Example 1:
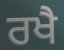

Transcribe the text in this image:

ਰਖੈ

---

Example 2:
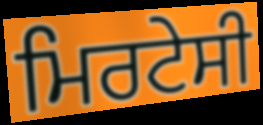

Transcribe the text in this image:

ਮਿਰਟੇਸੀ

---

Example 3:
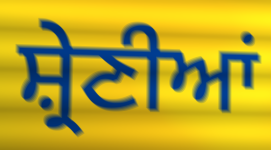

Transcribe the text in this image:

ਸ਼੍ਰੇਣੀਆਂ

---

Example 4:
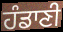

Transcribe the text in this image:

ਹੰਡਾਣੀ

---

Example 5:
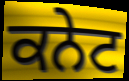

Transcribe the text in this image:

ਕਨੇਟ